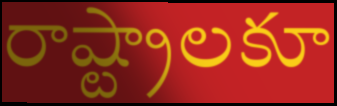
రాష్ట్రాలకూ